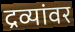
द्रव्यांवर